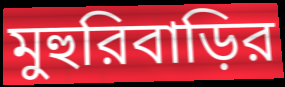
মুহুরিবাড়ির